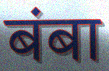
बंबा